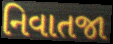
નિવાતજા